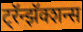
ट्रॅन्झॅक्शन्स